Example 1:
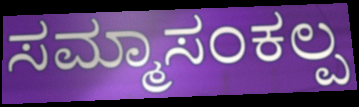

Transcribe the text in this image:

ಸಮ್ಮಾಸಂಕಲ್ಪ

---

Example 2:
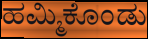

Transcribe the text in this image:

ಹಮ್ಮಿಕೊಂಡು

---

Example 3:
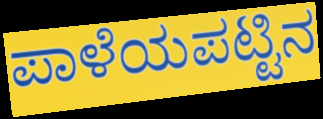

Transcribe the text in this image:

ಪಾಳೆಯಪಟ್ಟಿನ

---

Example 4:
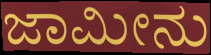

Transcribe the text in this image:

ಜಾಮೀನು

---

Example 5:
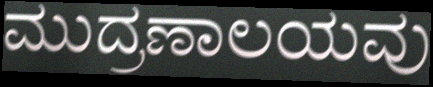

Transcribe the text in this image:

ಮುದ್ರಣಾಲಯವು